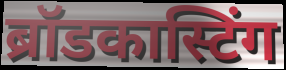
ब्रॉडकास्टिंग